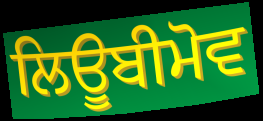
ਲਿਊਬੀਮੋਵ